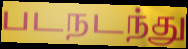
படநடந்து